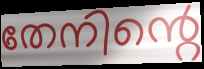
തേനിന്റെ